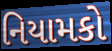
નિયામકો